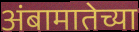
अंबामातेच्या